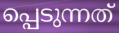
പ്പെടുന്നത്